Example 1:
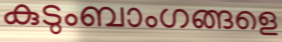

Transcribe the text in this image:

കുടുംബാംഗങ്ങളെ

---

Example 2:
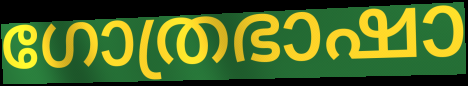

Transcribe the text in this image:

ഗോത്രഭാഷാ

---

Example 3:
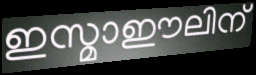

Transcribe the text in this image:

ഇസ്മാഈലിന്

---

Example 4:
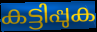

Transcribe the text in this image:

കട്ടിപ്പുക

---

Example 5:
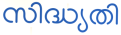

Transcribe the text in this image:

സിദ്ധ്യതി